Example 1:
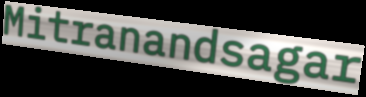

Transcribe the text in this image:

Mitranandsagar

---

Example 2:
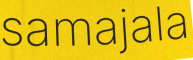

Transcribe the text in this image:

samajala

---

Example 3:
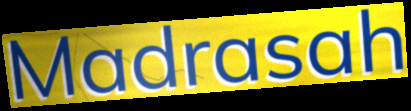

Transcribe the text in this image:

Madrasah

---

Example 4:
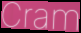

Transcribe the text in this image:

Cram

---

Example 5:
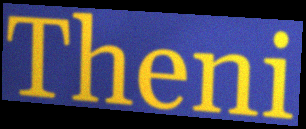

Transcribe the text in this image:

Theni